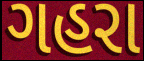
ગહરા